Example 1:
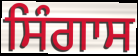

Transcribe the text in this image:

ਸਿੰਗਾਸ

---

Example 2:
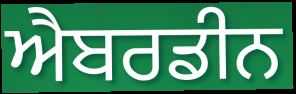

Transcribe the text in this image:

ਐਬਰਡੀਨ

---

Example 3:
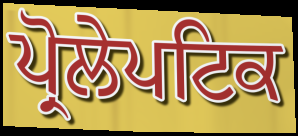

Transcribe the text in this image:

ਪ੍ਰੋਲੇਪਟਿਕ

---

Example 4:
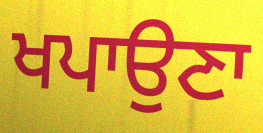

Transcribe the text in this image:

ਖਪਾਉਣਾ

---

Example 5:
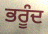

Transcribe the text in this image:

ਭਰੂੰਦ